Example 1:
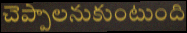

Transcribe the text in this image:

చెప్పాలనుకుంటుంది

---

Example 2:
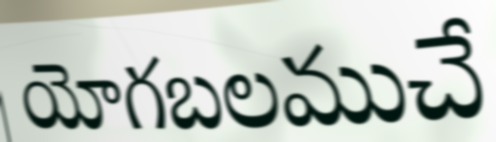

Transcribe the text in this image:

యోగబలముచే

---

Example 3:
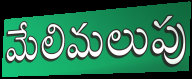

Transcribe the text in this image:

మేలిమలుపు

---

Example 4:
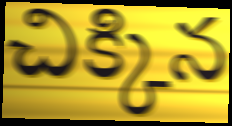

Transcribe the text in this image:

చిక్కిన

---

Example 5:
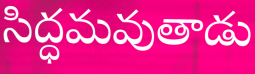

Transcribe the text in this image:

సిద్ధమవుతాడు